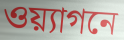
ওয়্যাগনে